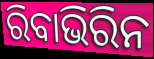
ରିବାଭିରିନ